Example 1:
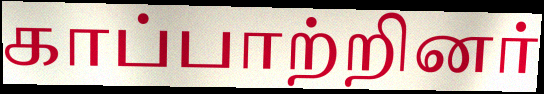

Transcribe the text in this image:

காப்பாற்றினர்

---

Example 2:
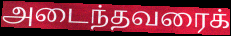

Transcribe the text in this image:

அடைந்தவரைக்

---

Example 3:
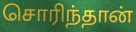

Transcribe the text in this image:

சொரிந்தான்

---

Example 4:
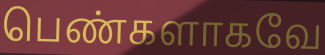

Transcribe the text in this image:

பெண்களாகவே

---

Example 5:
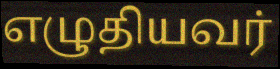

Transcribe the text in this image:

எழுதியவர்